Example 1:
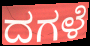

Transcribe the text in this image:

ದಗಳೆ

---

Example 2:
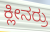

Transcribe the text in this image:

ಕ್ಲೀನರ್ರು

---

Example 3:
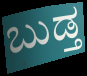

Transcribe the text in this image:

ಬುಡ್ತ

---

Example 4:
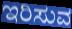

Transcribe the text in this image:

ಇರಿಸುವ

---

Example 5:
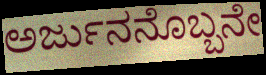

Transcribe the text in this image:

ಅರ್ಜುನನೊಬ್ಬನೇ